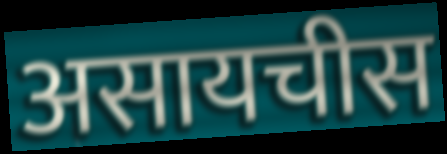
असायचीस